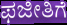
ಫಜೀತಿಗೆ